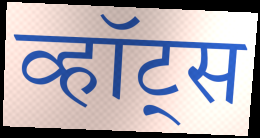
व्हॉट्‌स